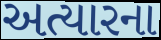
અત્યારના